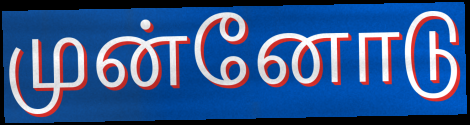
முன்னோடு